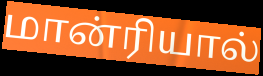
மான்ரியால்